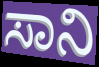
ಸಾನಿ